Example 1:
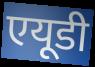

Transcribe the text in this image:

एयूडी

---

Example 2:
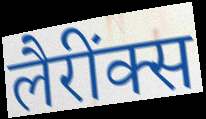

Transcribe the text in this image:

लैरींक्स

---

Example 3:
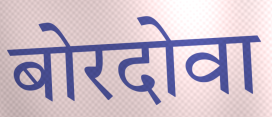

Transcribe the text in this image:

बोरदोवा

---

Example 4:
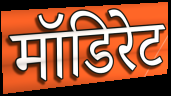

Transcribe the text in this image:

मॉडिरेट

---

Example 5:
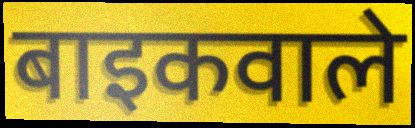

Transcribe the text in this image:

बाइकवाले